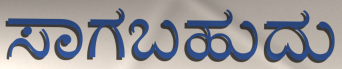
ಸಾಗಬಹುದು